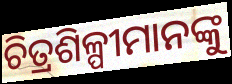
ଚିତ୍ରଶିଳ୍ପୀମାନଙ୍କୁ